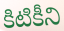
కిటికీని